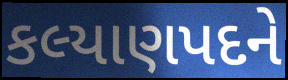
કલ્યાણપદને